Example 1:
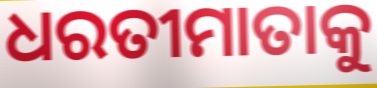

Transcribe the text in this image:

ଧରତୀମାତାକୁ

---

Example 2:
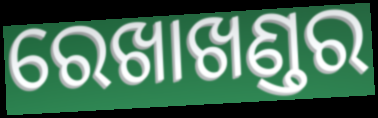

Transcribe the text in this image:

ରେଖାଖଣ୍ଡର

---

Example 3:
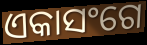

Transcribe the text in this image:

ଏକାସଂଗେ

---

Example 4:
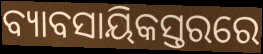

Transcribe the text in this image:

ବ୍ୟାବସାୟିକସ୍ତରରେ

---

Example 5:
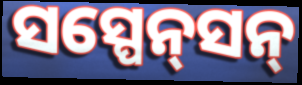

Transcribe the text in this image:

ସସ୍ପେନ୍‌ସନ୍